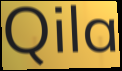
Qila